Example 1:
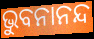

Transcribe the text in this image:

ଭୁବନାନନ୍ଦ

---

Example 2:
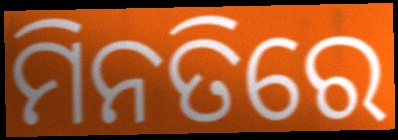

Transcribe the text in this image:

ମିନତିରେ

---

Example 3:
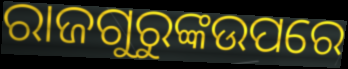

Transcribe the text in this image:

ରାଜଗୁରୁଙ୍କଉପରେ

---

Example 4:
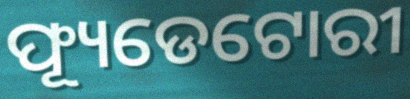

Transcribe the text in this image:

ଫ୍ୟୂଡେଟୋରୀ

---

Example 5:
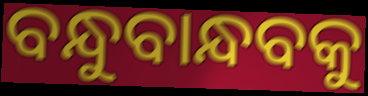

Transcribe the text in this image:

ବନ୍ଧୁବାନ୍ଧବକୁ